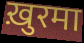
ख़ुरमा